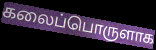
கலைப்பொருளாக